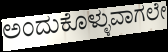
ಅಂದುಕೊಳ್ಳುವಾಗಲೇ